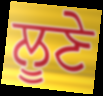
ਲੂਣੇ